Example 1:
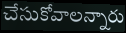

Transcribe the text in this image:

చేసుకోవాలన్నారు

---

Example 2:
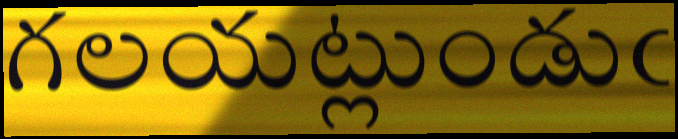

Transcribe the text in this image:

గలయట్లుండుఁ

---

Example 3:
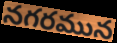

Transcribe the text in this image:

నగరమున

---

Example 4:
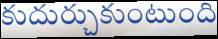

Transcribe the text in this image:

కుదుర్చుకుంటుంది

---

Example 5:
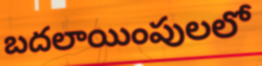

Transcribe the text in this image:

బదలాయింపులలో